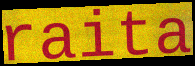
raita